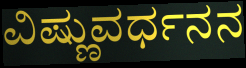
ವಿಷ್ಣುವರ್ಧನನ